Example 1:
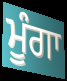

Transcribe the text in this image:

ਮੂੰਗਾ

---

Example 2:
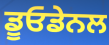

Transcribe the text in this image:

ਡੂਓਡੇਨਲ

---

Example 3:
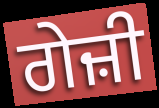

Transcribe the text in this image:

ਗੇਜ਼ੀ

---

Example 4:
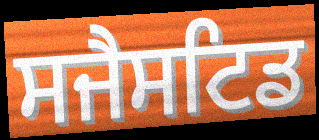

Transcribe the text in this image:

ਸਜੈਸਟਿਡ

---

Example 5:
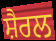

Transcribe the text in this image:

ਸ਼ੈਰਲ